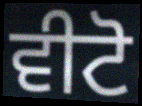
ਵੀਟੋ